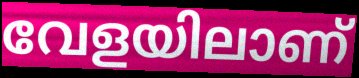
വേളയിലാണ്